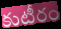
కుటీరం